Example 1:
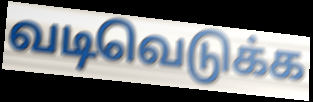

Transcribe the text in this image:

வடிவெடுக்க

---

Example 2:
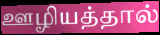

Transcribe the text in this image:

ஊழியத்தால்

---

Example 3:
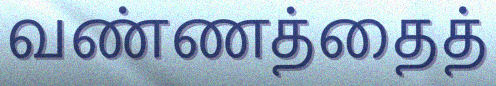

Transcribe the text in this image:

வண்ணத்தைத்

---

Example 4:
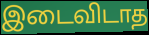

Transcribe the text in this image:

இடைவிடாத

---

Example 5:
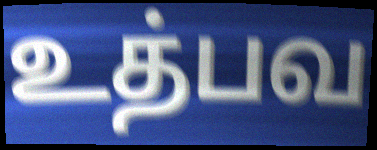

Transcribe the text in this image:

உத்பவ